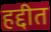
हद्दीत